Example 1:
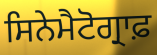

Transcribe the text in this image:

ਸਿਨੇਮੈਟੋਗ੍ਰਾਫ਼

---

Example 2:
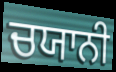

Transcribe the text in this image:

ਚਯਾਨੀ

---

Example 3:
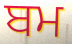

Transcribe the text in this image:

ਬਮ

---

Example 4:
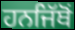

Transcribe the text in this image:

ਹਨਜਿੱਥੋਂ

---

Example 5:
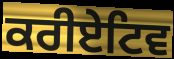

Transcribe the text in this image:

ਕਰੀਏਟਿਵ